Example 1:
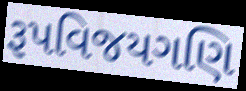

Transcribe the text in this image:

રૂપવિજયગણિ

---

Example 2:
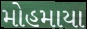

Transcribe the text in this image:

મોહમાયા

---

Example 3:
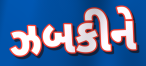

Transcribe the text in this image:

ઝબકીને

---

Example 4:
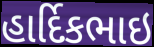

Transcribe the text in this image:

હાર્દિકભાઇ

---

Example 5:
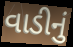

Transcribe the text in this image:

વાડીનું